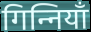
गिन्नियाँ